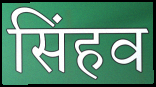
सिंहव